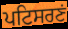
ਪਟਿਸਰਣਂ